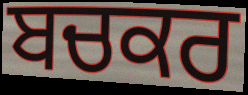
ਬਚਕਰ